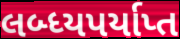
લબ્ધ્યપર્યાપ્ત